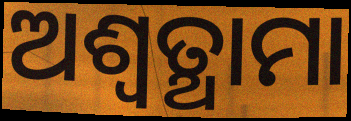
ଅଶ୍ଵତ୍ଥାମା